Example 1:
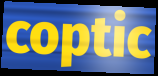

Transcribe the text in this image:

coptic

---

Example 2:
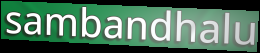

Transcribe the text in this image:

sambandhalu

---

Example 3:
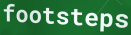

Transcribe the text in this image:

footsteps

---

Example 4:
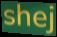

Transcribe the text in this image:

shej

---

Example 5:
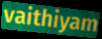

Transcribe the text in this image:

vaithiyam